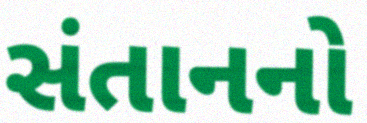
સંતાનનો